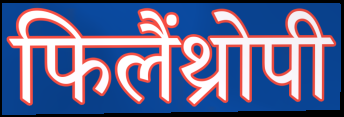
फिलैंथ्रोपी